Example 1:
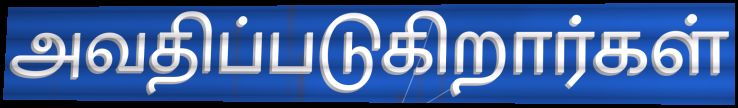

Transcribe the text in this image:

அவதிப்படுகிறார்கள்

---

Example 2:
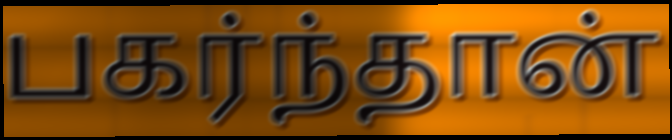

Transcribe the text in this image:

பகர்ந்தான்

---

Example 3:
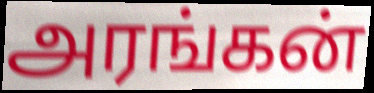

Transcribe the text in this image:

அரங்கன்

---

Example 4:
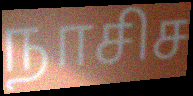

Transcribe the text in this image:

நாசிச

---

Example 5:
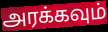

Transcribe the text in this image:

அரக்கவும்